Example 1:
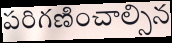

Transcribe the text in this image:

పరిగణించాల్సిన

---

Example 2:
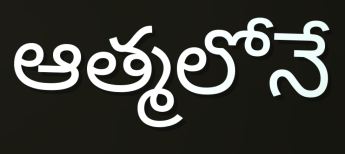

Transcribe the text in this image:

ఆత్మలోనే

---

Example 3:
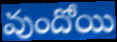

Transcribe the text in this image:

వుందోయి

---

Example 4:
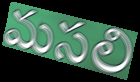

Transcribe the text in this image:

మసలి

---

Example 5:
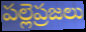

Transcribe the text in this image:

పల్లెప్రజలు